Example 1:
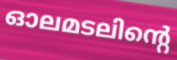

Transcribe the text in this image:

ഓലമടലിന്റെ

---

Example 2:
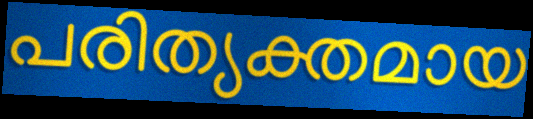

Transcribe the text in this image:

പരിത്യക്തമായ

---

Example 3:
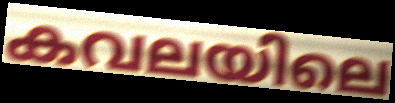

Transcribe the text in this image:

കവലയിലെ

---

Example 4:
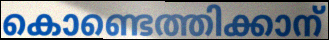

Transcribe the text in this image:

കൊണ്ടെത്തിക്കാന്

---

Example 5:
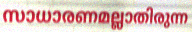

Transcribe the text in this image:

സാധാരണമല്ലാതിരുന്ന